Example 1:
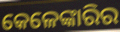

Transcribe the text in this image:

କେଳେଙ୍କାରିର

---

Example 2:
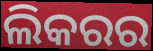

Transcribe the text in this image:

ଲିକରର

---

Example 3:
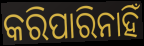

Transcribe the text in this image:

କରିପାରିନାହିଁ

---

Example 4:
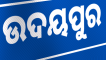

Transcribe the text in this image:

ଉଦୟପୁର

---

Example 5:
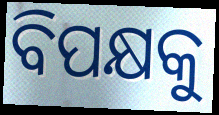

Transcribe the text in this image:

ବିପକ୍ଷକୁ